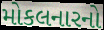
મોકલનારનો